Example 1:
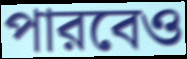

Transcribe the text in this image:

পারবেও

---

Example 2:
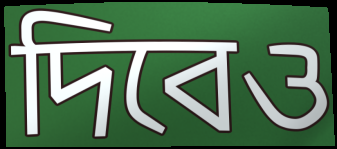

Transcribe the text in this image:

দিবেও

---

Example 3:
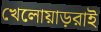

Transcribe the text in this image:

খেলোয়াড়রাই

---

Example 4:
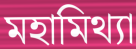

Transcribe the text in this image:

মহামিথ্যা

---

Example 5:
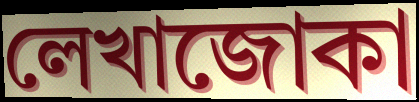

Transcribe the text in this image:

লেখাজোকা